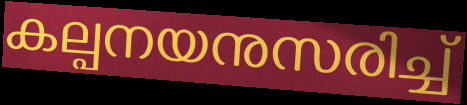
കല്പനയനുസരിച്ച്